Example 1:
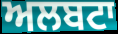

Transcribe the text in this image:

ਅਲਬਟਾ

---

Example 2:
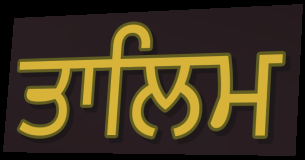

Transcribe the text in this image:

ਤਾਲਿਮ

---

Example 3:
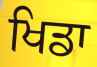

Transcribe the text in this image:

ਖਿਡਾ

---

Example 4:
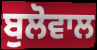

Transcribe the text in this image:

ਬੁਲੋਵਾਲ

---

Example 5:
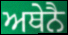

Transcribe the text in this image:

ਅਥੇਨੈ